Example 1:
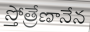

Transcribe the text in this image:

స్తోత్రేణానేన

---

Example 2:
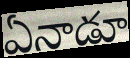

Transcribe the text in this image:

ఏనాడూ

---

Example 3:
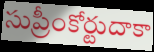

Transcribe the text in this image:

సుప్రీంకోర్టుదాకా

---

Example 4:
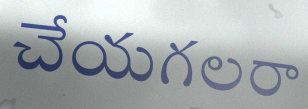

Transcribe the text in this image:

చేయగలరా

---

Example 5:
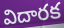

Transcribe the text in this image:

విదారక